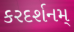
કરદર્શનમ્